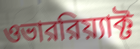
ওভাররিয়্যাক্ট